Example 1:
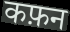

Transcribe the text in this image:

कफ़न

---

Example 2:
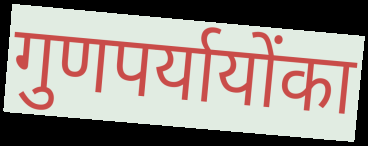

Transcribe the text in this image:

गुणपर्यायोंका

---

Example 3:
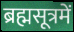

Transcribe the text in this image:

ब्रह्मसूत्रमें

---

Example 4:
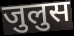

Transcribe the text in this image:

जुलुस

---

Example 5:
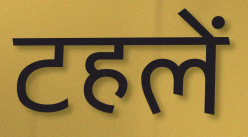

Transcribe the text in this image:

टहलें